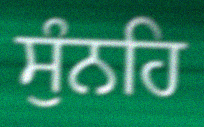
ਸੁੰਨਹਿ